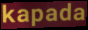
kapada